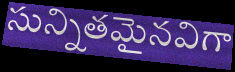
సున్నితమైనవిగా